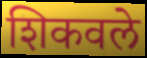
शिकवले